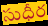
సుధీర